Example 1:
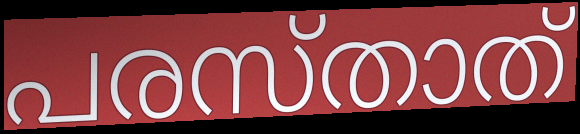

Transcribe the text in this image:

പരസ്താത്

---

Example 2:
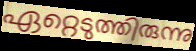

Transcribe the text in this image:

ഏറ്റെടുത്തിരുന്നു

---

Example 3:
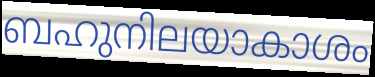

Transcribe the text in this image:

ബഹുനിലയാകാശം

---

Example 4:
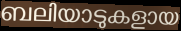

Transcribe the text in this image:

ബലിയാടുകളായ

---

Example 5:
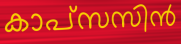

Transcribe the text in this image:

കാപ്സസിൻ